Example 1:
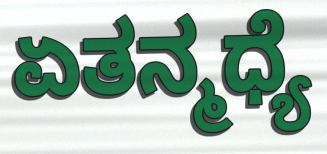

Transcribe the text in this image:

ಏತನ್ಮಧ್ಯೆ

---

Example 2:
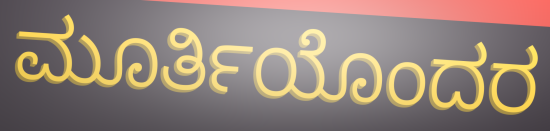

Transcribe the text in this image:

ಮೂರ್ತಿಯೊಂದರ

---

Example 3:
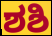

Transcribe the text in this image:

ಶಶಿ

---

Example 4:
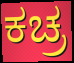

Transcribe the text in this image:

ಕಚ್ರ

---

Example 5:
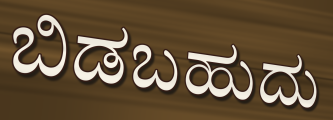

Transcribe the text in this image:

ಬಿಡಬಹುದು